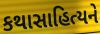
કથાસાહિત્યને